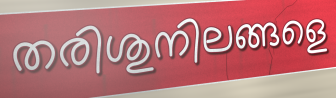
തരിശുനിലങ്ങളെ